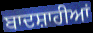
ਬਾਦਸ਼ਾਹੀਆਂ